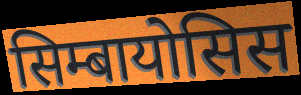
सिम्बायोसिस